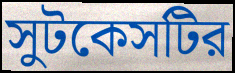
সুটকেসটির